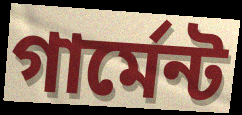
গার্মেন্ট